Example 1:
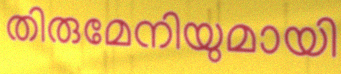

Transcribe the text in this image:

തിരുമേനിയുമായി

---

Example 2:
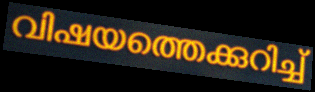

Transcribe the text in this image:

വിഷയത്തെക്കുറിച്ച്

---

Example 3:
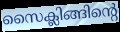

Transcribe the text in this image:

സൈക്ലിങ്ങിന്റെ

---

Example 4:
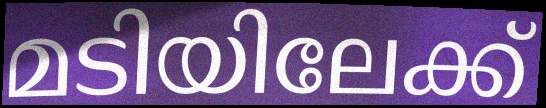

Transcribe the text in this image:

മടിയിലേക്ക്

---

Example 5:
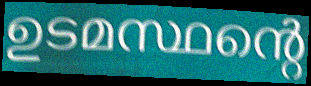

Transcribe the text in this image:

ഉടമസ്ഥന്റെ